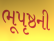
ભૂપૃષ્ઠની